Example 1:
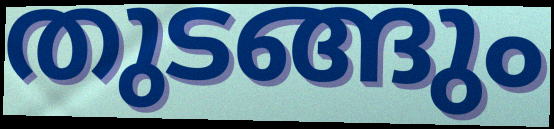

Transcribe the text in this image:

തുടങ്ങും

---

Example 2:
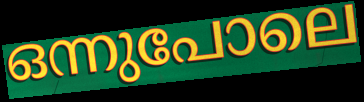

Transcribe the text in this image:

ഒന്നുപോലെ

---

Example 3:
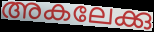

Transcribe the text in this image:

അകലേക്കു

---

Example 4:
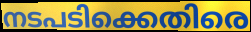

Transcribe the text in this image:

നടപടിക്കെതിരെ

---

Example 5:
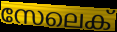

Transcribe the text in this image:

സേലെക്